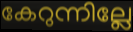
കേറുന്നില്ലേ